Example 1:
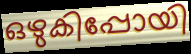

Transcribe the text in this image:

ഒഴുകിപ്പോയി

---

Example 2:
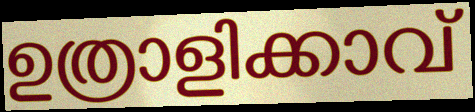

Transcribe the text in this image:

ഉത്രാളിക്കാവ്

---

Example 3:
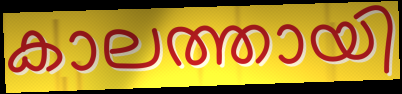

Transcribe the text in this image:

കാലത്തായി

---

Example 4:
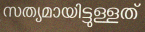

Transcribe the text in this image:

സത്യമായിട്ടുള്ളത്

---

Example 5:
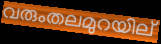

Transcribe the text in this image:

വരുംതലമുറയില്